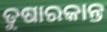
ତୁଷାରକାନ୍ତ